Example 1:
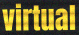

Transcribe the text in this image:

virtual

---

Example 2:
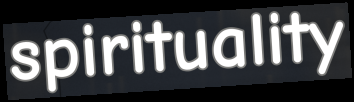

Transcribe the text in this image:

spirituality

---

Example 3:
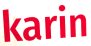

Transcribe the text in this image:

karin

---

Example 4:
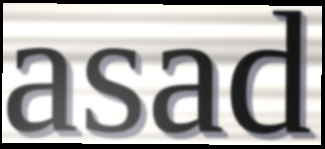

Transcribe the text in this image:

asad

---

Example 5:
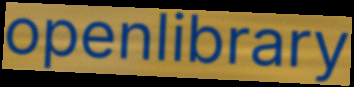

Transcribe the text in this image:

openlibrary